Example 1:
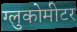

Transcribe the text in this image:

ग्लुकोमीटर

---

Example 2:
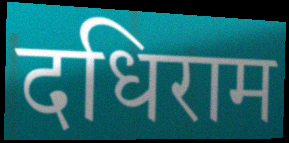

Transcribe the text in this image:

दधिराम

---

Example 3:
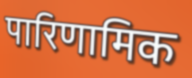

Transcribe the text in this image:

पारिणामिक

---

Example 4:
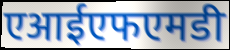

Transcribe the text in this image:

एआईएफएमडी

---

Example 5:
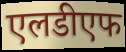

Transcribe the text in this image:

एलडीएफ